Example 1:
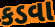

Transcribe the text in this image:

કડવા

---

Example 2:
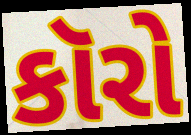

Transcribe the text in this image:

કૉરો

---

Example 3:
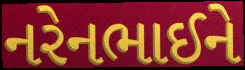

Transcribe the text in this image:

નરેનભાઈને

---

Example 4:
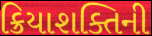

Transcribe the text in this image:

ક્રિયાશક્તિની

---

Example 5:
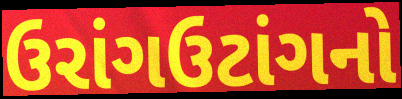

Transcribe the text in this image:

ઉરાંગઉટાંગનો